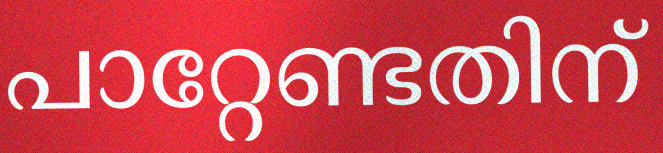
പാറ്റേണ്ടതിന്